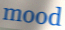
mood